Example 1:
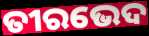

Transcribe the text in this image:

ତୀରଭେଦ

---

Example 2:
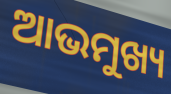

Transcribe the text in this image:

ଆଭମୁଖ୍ୟ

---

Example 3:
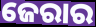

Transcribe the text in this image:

ଜେରାର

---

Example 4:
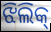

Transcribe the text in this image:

ଝିଲିକ୍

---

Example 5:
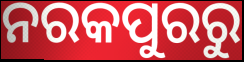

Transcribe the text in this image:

ନରକପୁରରୁ